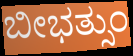
ಬೀಭತ್ಸುಂ